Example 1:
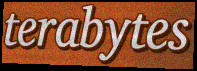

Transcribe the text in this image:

terabytes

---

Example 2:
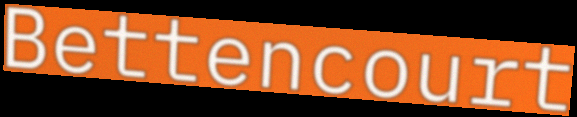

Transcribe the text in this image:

Bettencourt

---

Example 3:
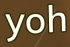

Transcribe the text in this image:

yoh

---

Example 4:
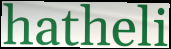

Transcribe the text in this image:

hatheli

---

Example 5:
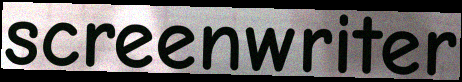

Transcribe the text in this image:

screenwriter